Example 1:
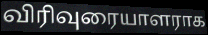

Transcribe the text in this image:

விரிவுரையாளராக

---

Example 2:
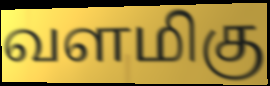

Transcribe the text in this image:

வளமிகு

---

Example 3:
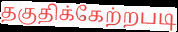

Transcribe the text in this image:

தகுதிக்கேற்றபடி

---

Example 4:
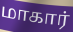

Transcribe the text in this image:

மாகார்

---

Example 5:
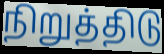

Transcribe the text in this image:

நிறுத்திடு